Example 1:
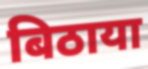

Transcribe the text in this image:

बिठाया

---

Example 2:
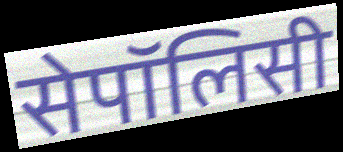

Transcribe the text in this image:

सेपॉलिसी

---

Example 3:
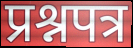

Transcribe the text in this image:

प्रश्नपत्र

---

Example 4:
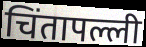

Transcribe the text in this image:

चिंतापल्ली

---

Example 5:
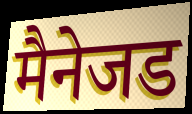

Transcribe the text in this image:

मैनेजड